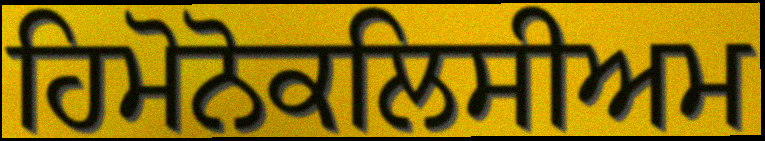
ਹਿਮੋਨੋਕਲਿਸੀਅਮ